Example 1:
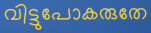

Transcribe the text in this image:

വിട്ടുപോകരുതേ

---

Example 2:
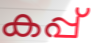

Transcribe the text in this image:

കപ്പ്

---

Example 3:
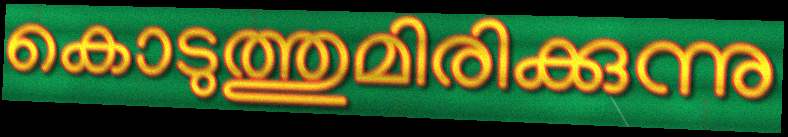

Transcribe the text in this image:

കൊടുത്തുമിരിക്കുന്നു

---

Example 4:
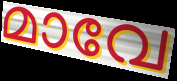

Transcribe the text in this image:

മാവേ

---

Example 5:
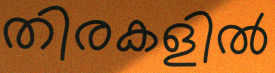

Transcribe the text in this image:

തിരകളിൽ